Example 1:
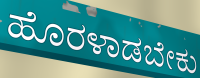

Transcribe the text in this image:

ಹೊರಳಾಡಬೇಕು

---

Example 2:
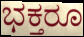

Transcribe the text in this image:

ಭಕ್ತರೂ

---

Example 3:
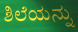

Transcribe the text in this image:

ಶಿಲೆಯನ್ನು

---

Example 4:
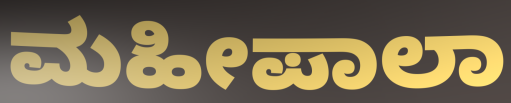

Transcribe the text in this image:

ಮಹೀಪಾಲಾ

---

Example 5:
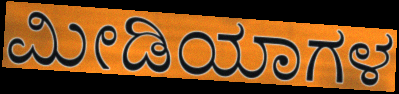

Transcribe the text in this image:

ಮೀಡಿಯಾಗಳ